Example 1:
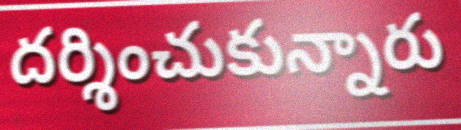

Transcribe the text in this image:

దర్శించుకున్నారు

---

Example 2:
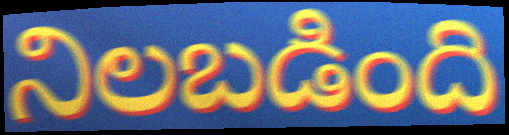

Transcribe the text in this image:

నిలబడింది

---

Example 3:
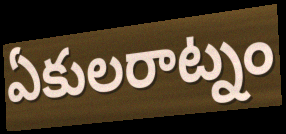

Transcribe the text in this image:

ఏకులరాట్నం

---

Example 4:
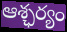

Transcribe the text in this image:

ఆశ్ఛర్యం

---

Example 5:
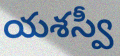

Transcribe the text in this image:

యశస్వీ